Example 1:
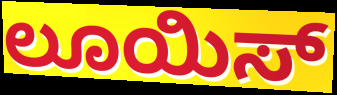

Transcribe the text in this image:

ಲೂಯಿಸ್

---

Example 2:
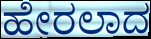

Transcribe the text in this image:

ಹೇರಲಾದ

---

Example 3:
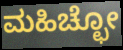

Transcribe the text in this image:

ಮಹಿಚ್ಛೋ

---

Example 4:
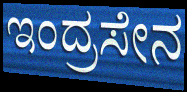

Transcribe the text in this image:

ಇಂದ್ರಸೇನ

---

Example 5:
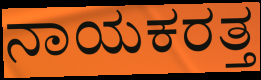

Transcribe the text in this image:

ನಾಯಕರತ್ತ